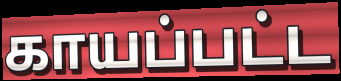
காயப்பட்ட